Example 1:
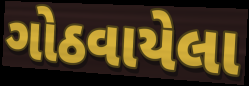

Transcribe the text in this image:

ગોઠવાયેલા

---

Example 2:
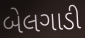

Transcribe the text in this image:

બેલગાડી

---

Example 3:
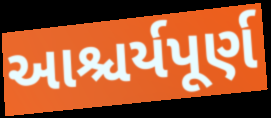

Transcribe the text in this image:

આશ્ચર્યપૂર્ણ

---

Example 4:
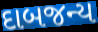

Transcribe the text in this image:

દાબજન્ય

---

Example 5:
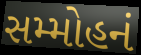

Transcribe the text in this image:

સમ્મોહનં